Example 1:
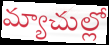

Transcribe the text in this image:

మ్యాచుల్లో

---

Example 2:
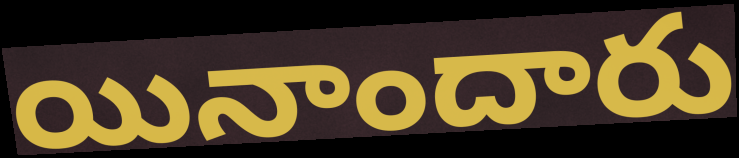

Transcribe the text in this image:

యినాందారు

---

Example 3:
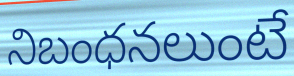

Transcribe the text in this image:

నిబంధనలుంటే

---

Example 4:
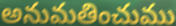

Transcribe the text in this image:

అనుమతించుము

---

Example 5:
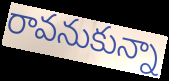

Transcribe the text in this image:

రావనుకున్నా